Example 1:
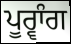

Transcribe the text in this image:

ਪੂਰ੍ਵਾੰਗ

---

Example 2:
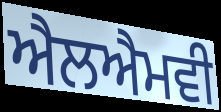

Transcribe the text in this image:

ਐਲਐਮਵੀ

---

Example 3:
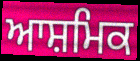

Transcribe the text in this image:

ਆਸ਼ਮਿਕ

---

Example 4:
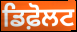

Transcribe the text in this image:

ਡਿਫ਼ੋਲਟ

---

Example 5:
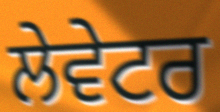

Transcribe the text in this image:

ਲੇਵੇਟਰ